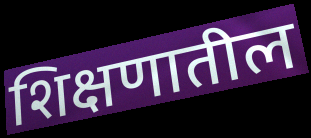
शिक्षणातील